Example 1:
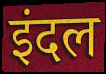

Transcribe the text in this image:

इंदल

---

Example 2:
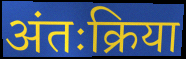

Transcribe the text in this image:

अंतःक्रिया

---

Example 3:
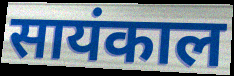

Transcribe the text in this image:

सायंकाल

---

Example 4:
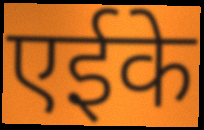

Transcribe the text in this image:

एईके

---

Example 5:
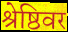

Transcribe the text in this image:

श्रेष्ठिवर